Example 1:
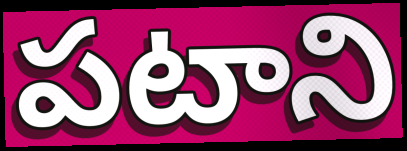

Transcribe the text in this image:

పటాని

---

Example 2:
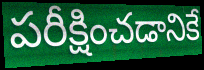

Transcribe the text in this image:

పరీక్షించడానికే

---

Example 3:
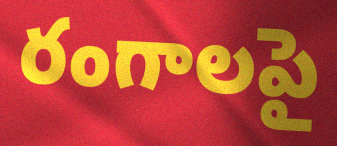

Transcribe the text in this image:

రంగాలపై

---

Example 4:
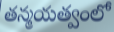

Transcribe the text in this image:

తన్మయత్వంలో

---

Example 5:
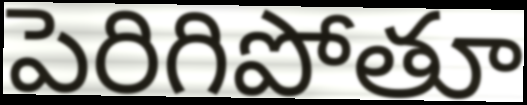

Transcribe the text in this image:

పెరిగిపోతూ